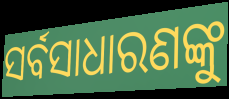
ସର୍ବସାଧାରଣଙ୍କୁ